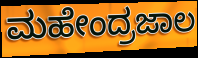
ಮಹೇಂದ್ರಜಾಲ